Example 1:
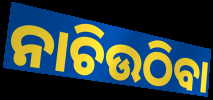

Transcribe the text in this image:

ନାଚିଉଠିବା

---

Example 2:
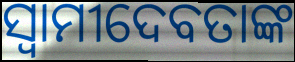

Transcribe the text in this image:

ସ୍ୱାମୀଦେବତାଙ୍କ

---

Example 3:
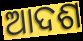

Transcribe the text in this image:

ଆଦଶ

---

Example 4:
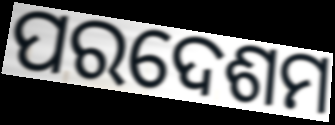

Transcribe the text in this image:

ପରଦେଶମ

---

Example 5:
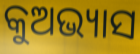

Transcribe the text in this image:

କୁଅଭ୍ୟାସ